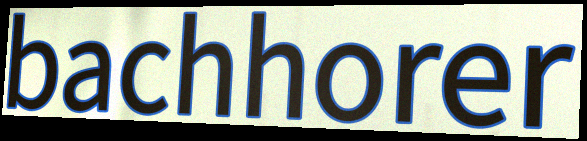
bachhorer